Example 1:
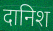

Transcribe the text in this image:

दानिश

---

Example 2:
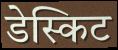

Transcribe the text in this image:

डेस्किट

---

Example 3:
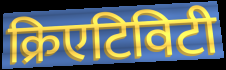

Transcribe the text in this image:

क्रिएटिविटी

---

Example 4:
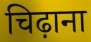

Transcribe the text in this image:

चिढ़ाना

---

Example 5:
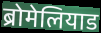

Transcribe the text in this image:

ब्रोमेलियाड